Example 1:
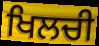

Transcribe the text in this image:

ਖਿਲਚੀ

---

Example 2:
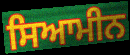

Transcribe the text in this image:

ਸਿਆਮੀਨ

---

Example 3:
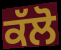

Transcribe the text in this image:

ਕੱਲੋ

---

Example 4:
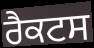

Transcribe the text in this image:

ਰੈਕਟਸ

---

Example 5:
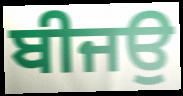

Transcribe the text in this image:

ਬੀਜਉ